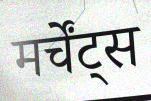
मर्चेंट्स